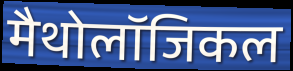
मैथोलॉजिकल